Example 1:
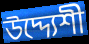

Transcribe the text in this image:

উদ্দ্যেশী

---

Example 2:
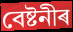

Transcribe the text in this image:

বেষ্টনীৰ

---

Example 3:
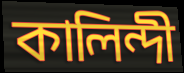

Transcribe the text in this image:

কালিন্দী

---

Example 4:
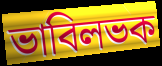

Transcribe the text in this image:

ভাবিলভক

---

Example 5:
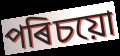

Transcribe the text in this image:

পৰিচয়ো